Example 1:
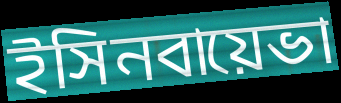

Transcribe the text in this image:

ইসিনবায়েভা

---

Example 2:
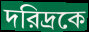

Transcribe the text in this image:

দরিদ্রকে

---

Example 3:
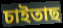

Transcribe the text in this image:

চাইতাছ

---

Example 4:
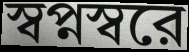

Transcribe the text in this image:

স্বপ্নস্বরে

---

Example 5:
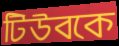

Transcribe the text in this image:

টিউবকে